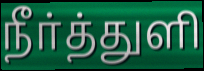
நீர்த்துளி